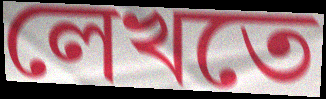
লেখতে